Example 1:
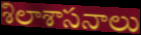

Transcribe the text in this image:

శిలాశాసనాలు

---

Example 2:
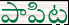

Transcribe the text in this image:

పాపిట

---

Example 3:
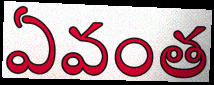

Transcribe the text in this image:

ఏవంత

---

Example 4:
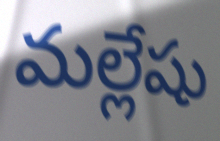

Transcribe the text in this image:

మల్లేషు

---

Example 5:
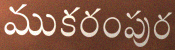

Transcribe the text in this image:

ముకరంపుర